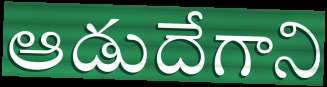
ఆడుదేగాని